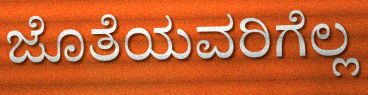
ಜೊತೆಯವರಿಗೆಲ್ಲ